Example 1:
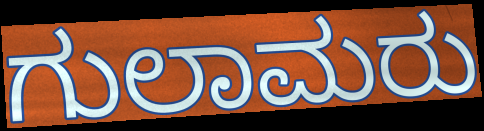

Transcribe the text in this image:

ಗುಲಾಮರು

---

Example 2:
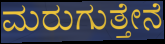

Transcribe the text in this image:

ಮರುಗುತ್ತೇನೆ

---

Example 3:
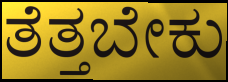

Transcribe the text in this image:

ತೆತ್ತಬೇಕು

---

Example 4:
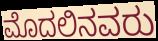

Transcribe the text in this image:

ಮೊದಲಿನವರು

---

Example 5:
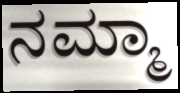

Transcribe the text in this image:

ನಮ್ಮಾ